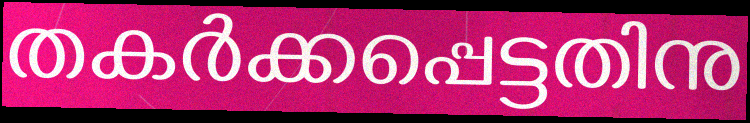
തകർക്കപ്പെട്ടതിനു